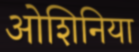
ओशिनिया